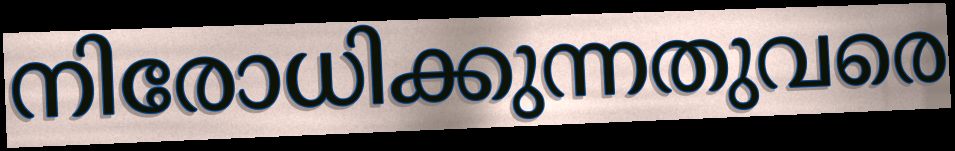
നിരോധിക്കുന്നതുവരെ